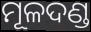
ମୂଳଦଣ୍ଡ